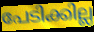
പേടിക്കില്ല